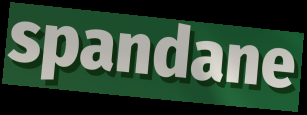
spandane